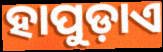
ହାପୁଡ଼ାଏ